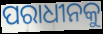
ପରାଧୀନକୁ